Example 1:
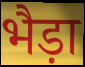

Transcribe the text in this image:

भैड़ा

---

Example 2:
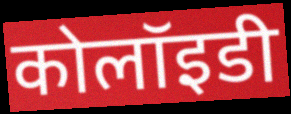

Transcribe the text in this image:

कोलॉइडी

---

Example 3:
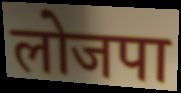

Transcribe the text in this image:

लोजपा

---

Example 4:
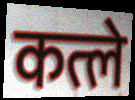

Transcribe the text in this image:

कत्ले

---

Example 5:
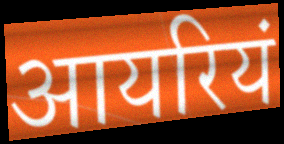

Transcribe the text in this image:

आयरियं